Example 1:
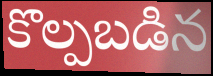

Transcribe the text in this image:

కొల్పబడిన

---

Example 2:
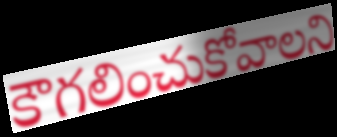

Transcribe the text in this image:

కౌగలించుకోవాలని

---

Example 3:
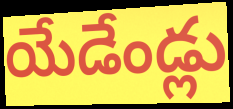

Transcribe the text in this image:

యేడేండ్లు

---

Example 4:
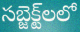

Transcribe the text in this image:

సబ్జెక్ట్‌లలో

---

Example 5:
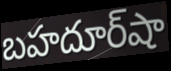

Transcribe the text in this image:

బహదూర్‌షా